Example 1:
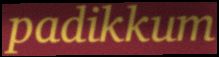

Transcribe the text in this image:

padikkum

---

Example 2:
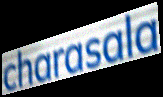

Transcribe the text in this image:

charasala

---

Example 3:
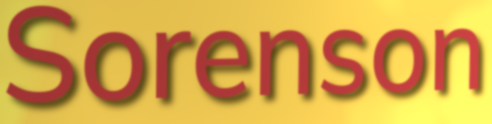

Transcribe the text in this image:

Sorenson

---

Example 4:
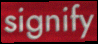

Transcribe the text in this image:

signify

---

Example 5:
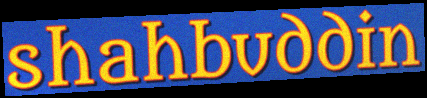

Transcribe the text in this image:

shahbuddin